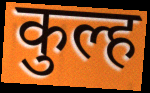
कुल्ह